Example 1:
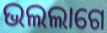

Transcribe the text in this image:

ଭଲଲାଗେ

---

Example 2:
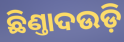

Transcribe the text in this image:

ଛିଣ୍ତାଦଉଡ଼ି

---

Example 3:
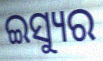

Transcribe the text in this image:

ଇସ୍ୟୁର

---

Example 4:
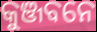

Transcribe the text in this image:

କୁଞ୍ଜବନେ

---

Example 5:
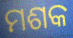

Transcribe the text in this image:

ମଶକ